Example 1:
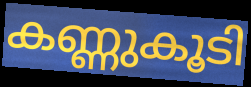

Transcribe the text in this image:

കണ്ണുകൂടി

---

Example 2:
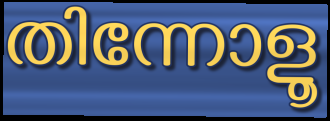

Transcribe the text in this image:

തിന്നോളൂ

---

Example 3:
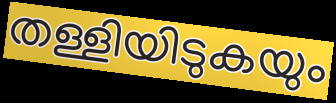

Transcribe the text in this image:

തള്ളിയിടുകയും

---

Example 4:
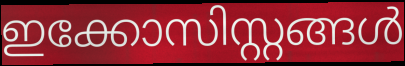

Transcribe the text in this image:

ഇക്കോസിസ്റ്റങ്ങൾ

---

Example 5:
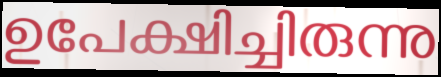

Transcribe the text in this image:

ഉപേക്ഷിച്ചിരുന്നു